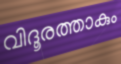
വിദൂരത്താകും